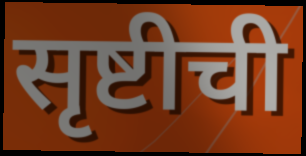
सृष्टीची